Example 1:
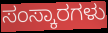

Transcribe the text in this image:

ಸಂಸ್ಕಾರಗಳು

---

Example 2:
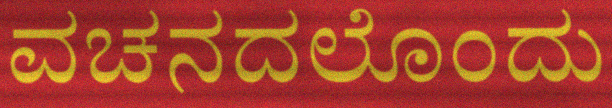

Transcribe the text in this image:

ವಚನದಲೊಂದು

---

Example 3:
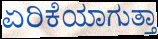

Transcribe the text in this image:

ಏರಿಕೆಯಾಗುತ್ತಾ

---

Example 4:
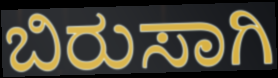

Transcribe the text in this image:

ಬಿರುಸಾಗಿ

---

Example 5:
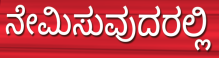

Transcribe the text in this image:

ನೇಮಿಸುವುದರಲ್ಲಿ